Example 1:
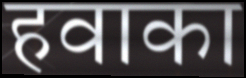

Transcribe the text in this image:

हवाका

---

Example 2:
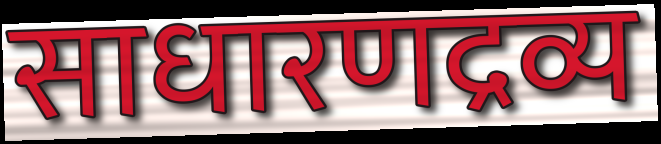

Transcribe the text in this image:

साधारणद्रव्य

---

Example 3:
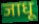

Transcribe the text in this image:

जाधू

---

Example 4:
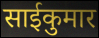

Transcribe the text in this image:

साईकुमार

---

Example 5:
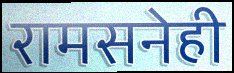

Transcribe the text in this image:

रामसनेही